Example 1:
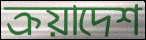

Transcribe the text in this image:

ক্রয়াদেশ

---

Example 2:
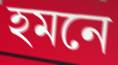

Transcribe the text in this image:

হমনে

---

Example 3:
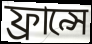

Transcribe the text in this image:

ফ্রান্সে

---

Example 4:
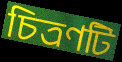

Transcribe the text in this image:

চিত্রণটি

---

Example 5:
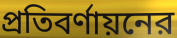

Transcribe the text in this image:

প্রতিবর্ণায়নের